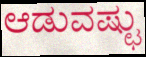
ಆಡುವಷ್ಟು